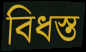
বিধস্ত